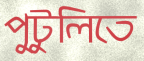
পুটুলিতে